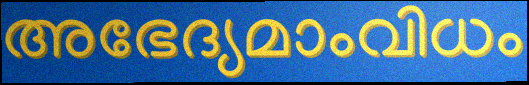
അഭേദ്യമാംവിധം